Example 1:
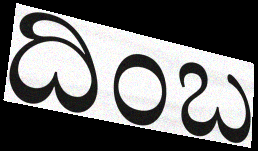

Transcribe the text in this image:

ದಿಂಬ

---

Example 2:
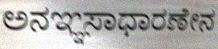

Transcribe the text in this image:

ಅನಞ್ಞಸಾಧಾರಣೇನ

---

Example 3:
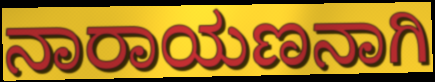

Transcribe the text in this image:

ನಾರಾಯಣನಾಗಿ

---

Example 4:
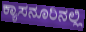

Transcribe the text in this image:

ಕ್ಯಾಸನೂರಿನಲ್ಲಿ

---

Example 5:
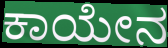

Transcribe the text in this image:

ಕಾಯೇನ